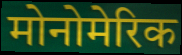
मोनोमेरिक